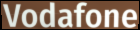
Vodafone